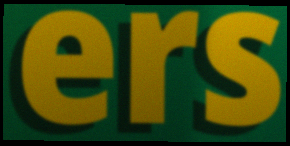
ers